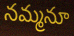
నమ్మనూ